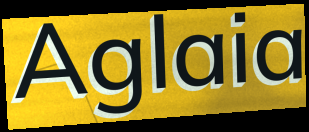
Aglaia